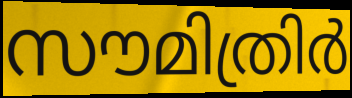
സൗമിത്രിർ